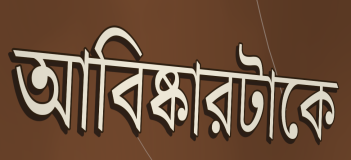
আবিষ্কারটাকে